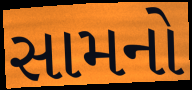
સામનો